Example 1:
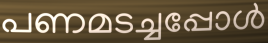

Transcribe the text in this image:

പണമടച്ചപ്പോൾ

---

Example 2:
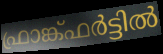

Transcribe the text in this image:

ഫ്രാങ്ക്ഫർട്ടിൽ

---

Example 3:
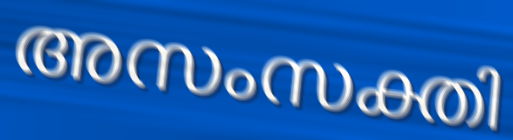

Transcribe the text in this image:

അസംസക്തി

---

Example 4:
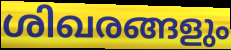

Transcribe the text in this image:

ശിഖരങ്ങളും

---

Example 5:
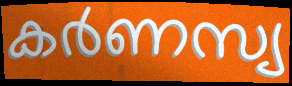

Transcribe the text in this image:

കർണസ്യ